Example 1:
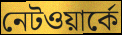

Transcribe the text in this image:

নেটওয়ার্কে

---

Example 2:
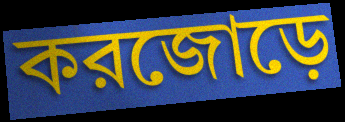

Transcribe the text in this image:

করজোড়ে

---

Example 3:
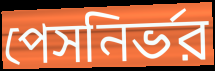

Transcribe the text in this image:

পেসনির্ভর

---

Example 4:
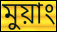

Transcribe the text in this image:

মুয়াং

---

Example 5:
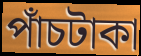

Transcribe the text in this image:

পাঁচটাকা